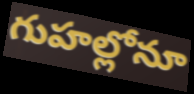
గుహల్లోనూ